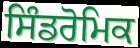
ਸਿੰਡਰੋਮਿਕ